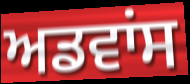
ਅਡਵਾਂਸ